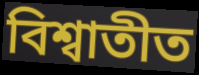
বিশ্বাতীত